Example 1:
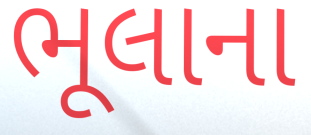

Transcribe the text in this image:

ભૂલાના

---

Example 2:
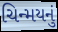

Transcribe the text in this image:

ચિન્મયનું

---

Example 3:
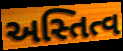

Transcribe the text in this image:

અસ્તિત્વ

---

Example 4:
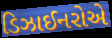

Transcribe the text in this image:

ડિઝાઈનરોએ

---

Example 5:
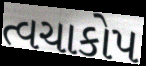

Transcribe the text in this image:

ત્વચાકોપ